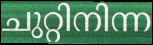
ചുറ്റിനിന്ന